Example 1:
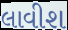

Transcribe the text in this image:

લાવીશ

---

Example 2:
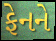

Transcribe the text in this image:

ફેનને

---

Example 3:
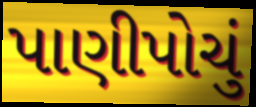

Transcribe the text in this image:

પાણીપોચું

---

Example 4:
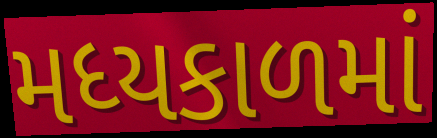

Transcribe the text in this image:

મધ્યકાળમાં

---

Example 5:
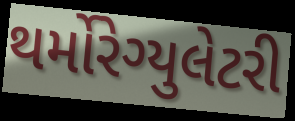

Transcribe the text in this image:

થર્મોરેગ્યુલેટરી